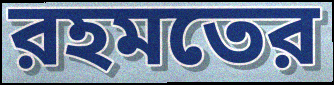
রহমতের